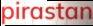
pirastan